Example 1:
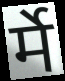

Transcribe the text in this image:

र्मे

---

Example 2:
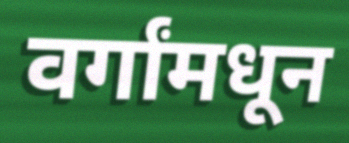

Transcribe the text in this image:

वर्गांमधून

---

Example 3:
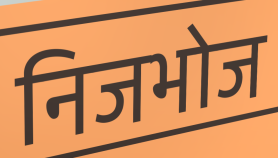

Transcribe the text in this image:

निजभोज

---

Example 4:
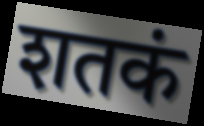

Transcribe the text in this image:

शतकं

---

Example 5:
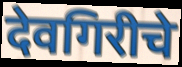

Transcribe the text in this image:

देवगिरीचे